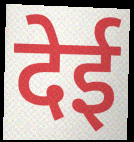
देई